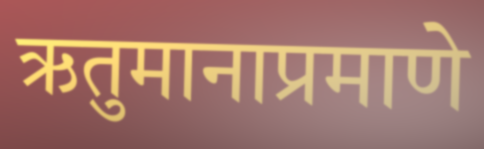
ऋतुमानाप्रमाणे